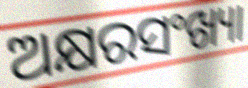
ଅକ୍ଷରସଂଖ୍ୟା